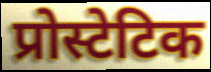
प्रोस्टेटिक